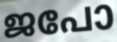
ജപോ